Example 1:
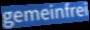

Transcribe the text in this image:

gemeinfrei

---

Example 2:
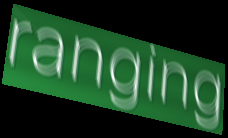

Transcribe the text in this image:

ranging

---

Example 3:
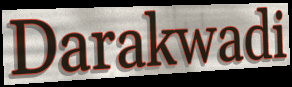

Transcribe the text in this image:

Darakwadi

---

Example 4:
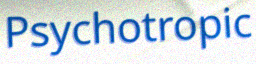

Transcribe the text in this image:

Psychotropic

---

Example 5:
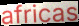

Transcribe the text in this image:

africas